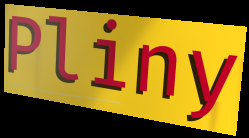
Pliny